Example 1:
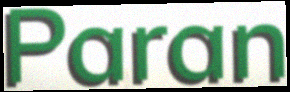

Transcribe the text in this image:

Paran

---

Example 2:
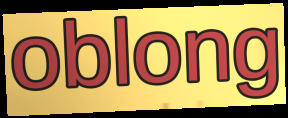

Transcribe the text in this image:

oblong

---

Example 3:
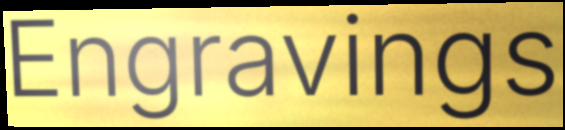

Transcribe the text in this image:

Engravings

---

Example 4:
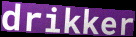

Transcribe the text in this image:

drikker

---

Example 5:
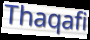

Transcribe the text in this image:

Thaqafi